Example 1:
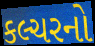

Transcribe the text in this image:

કલ્ચરનો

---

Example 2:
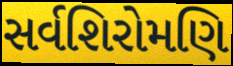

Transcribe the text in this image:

સર્વશિરોમણિ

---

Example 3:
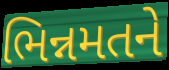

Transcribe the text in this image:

ભિન્નમતને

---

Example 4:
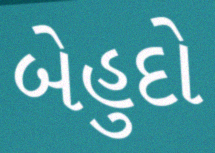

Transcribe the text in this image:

બેહુદો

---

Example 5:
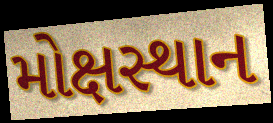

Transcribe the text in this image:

મોક્ષસ્થાન